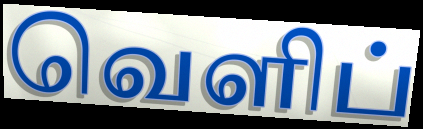
வெளிப்